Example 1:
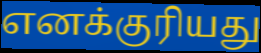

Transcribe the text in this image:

எனக்குரியது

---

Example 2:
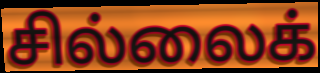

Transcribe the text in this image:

சில்லைக்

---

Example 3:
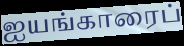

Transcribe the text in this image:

ஐயங்காரைப்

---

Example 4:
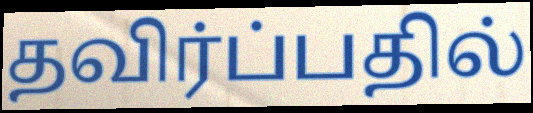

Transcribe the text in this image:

தவிர்ப்பதில்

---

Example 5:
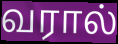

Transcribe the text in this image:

வரால்